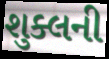
શુક્લની